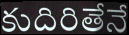
కుదిరితేనే